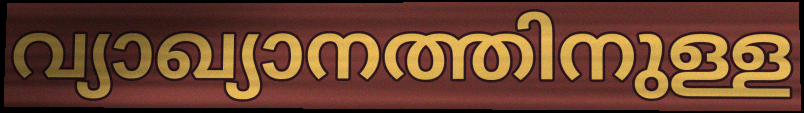
വ്യാഖ്യാനത്തിനുള്ള